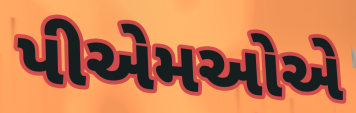
પીએમઓએ